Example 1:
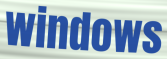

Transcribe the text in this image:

windows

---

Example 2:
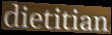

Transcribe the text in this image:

dietitian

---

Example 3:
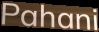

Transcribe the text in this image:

Pahani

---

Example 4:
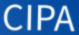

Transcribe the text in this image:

CIPA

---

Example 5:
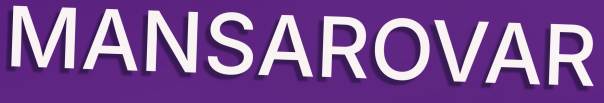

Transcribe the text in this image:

MANSAROVAR